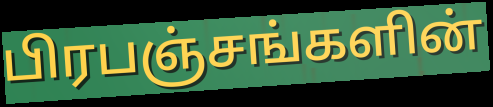
பிரபஞ்சங்களின்